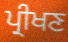
ਪ੍ਰੀਖਣ